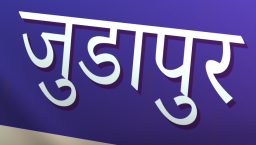
जुडापुर